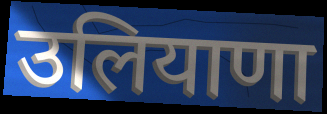
उलियाणा